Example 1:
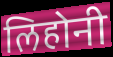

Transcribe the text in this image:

लिहोनी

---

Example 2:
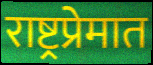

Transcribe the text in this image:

राष्ट्रप्रेमात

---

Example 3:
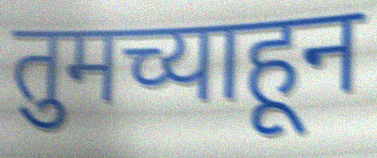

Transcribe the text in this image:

तुमच्याहून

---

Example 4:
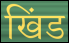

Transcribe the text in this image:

खिंड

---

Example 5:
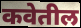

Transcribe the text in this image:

कवेतील